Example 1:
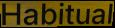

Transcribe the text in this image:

Habitual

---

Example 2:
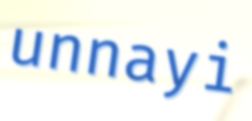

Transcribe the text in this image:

unnayi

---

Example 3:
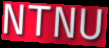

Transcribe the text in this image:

NTNU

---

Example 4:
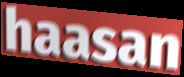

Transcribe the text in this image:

haasan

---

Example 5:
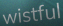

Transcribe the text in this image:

wistful